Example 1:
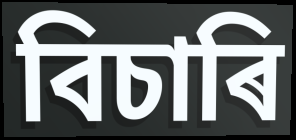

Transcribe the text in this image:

বিচাৰি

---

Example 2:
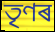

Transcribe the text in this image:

তৃণৰ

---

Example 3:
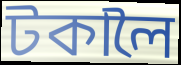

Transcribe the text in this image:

টকালৈ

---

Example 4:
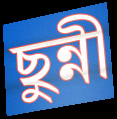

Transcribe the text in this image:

ছুন্নী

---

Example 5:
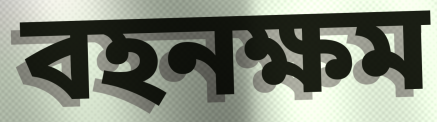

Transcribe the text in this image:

বহনক্ষম